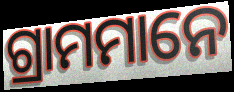
ଗ୍ରାମମାନେ